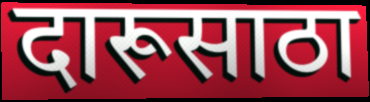
दारूसाठा